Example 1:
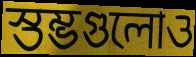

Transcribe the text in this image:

স্তম্ভগুলোও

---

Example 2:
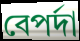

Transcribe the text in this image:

বেপর্দা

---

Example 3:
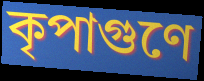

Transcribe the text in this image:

কৃপাগুণে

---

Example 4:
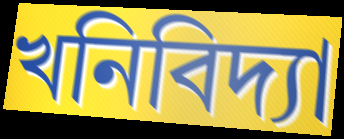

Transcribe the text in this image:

খনিবিদ্যা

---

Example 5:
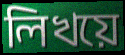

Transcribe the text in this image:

লিখয়ে